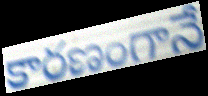
కారణంగానే